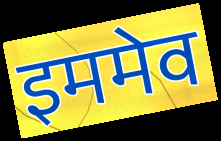
इममेव